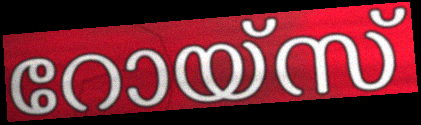
റോയ്സ്